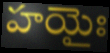
హయైః